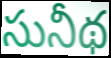
సునీథ